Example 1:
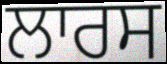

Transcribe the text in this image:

ਲਾਰਸ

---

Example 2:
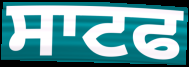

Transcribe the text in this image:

ਸਾਟਫ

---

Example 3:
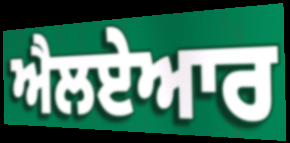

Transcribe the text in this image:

ਐਲਏਆਰ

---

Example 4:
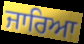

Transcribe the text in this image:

ਜਾਰਿਆ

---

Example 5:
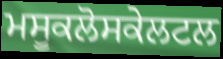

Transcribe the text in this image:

ਮਸੂਕਲੋਸਕੇਲਟਲ